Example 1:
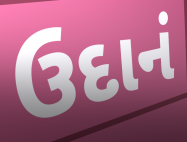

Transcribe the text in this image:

ઉદાનં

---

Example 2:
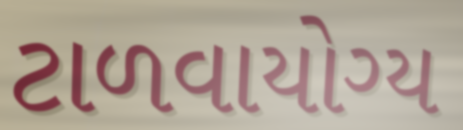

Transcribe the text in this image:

ટાળવાયોગ્ય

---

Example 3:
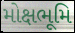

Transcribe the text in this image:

મોક્ષભૂમિ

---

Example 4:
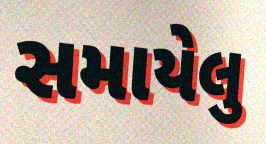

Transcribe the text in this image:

સમાયેલુ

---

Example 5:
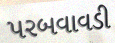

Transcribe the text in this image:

પરબવાવડી